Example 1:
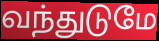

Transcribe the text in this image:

வந்துடுமே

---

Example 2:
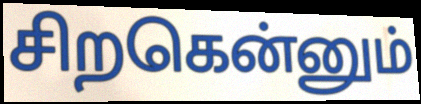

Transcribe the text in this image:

சிறகென்னும்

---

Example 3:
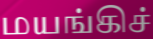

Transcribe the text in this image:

மயங்கிச்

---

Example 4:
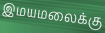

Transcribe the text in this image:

இமயமலைக்கு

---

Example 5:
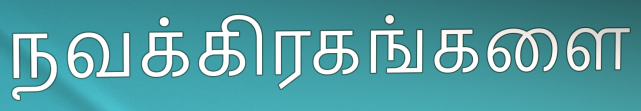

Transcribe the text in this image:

நவக்கிரகங்களை